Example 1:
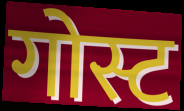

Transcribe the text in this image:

गोस्ट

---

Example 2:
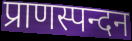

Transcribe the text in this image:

प्राणस्पन्दन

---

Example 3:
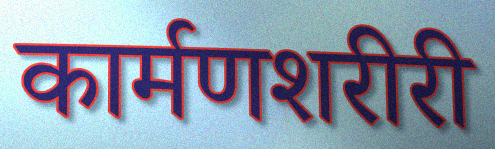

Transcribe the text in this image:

कार्मणशरीरी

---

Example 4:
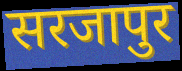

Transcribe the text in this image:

सरजापुर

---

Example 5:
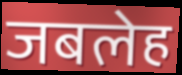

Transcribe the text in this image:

जबलेह